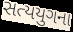
સત્યયુગના